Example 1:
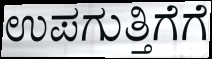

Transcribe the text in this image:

ಉಪಗುತ್ತಿಗೆಗೆ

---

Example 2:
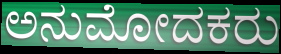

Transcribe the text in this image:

ಅನುಮೋದಕರು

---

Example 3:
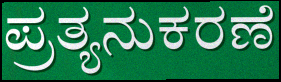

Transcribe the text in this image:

ಪ್ರತ್ಯನುಕರಣೆ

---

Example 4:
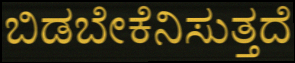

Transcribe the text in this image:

ಬಿಡಬೇಕೆನಿಸುತ್ತದೆ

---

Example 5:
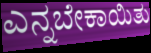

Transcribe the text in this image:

ಎನ್ನಬೇಕಾಯಿತು